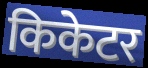
किकेटर